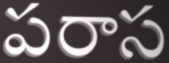
పరాస